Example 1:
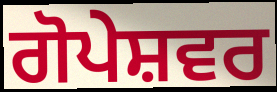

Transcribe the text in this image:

ਗੋਪੇਸ਼ਵਰ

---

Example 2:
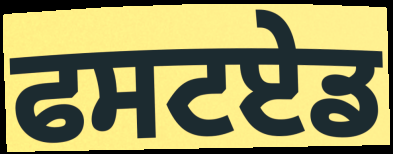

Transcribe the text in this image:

ਫਸਟਏਡ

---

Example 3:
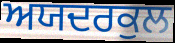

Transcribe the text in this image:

ਅਯਦਰਕੁਲ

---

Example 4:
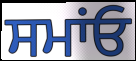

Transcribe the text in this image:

ਸਮਾਂਓ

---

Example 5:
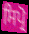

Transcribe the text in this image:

ਸਿਪ੍ਰੋ